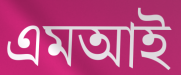
এমআই